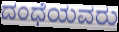
ದಂಧೆಯವರು